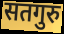
सतगुरु